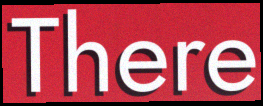
There